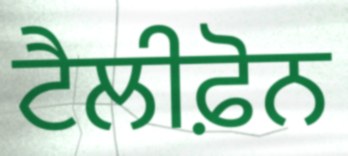
ਟੈਲੀਫ਼ੋਨ